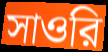
সাওরি